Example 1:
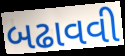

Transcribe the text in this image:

બઢાવવી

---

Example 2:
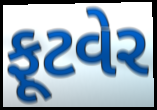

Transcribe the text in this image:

ફૂટવેર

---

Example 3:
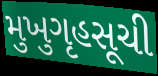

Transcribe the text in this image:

મુખુગૃહસૂચી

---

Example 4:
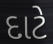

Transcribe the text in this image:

દાટે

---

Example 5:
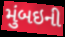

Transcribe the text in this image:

મુંબઇની